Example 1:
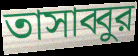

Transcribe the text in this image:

তাসাব্বুর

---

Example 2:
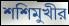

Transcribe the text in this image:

শশিমুখীর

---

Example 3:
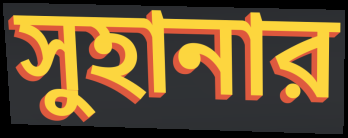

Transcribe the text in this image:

সুহানার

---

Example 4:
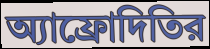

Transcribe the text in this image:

অ্যাফ্রোদিতির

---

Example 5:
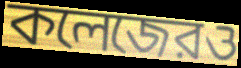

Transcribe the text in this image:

কলেজেরও